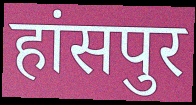
हांसपुर